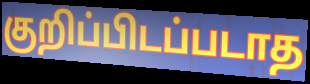
குறிப்பிடப்படாத